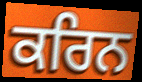
ਕਰਿਨ